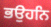
ਭਉਹਨਿ